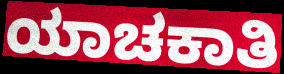
ಯಾಚಕಾತಿ